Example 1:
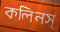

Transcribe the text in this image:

কলিনস্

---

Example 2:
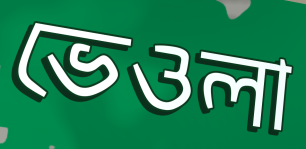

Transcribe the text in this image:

ভেওলা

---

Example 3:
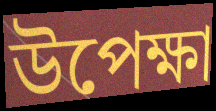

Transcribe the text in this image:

উপেক্ষা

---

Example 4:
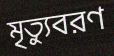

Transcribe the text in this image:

মৃত্যুবরণ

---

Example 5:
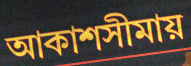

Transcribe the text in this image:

আকাশসীমায়